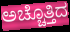
ಅಚ್ಚೊತ್ತಿದ